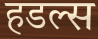
हडल्स